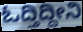
ಓದ್ತಿದ್ದೀನಿ